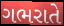
ગભરાતે